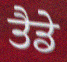
ਤੈਡੇ